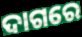
ଦାଗରେ